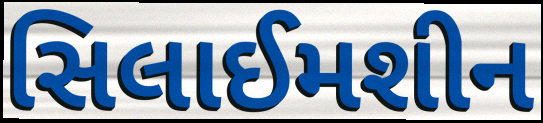
સિલાઈમશીન